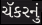
ચૅકરનું